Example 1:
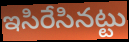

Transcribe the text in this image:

ఇసిరేసినట్టు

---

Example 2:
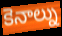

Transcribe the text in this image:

కెనాల్ను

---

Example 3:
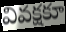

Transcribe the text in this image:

వివక్షకూ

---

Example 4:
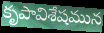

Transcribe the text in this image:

కృపావిశేషమున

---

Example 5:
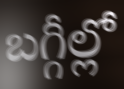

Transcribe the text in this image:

బగ్గీల్లో